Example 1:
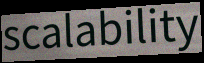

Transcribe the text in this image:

scalability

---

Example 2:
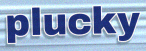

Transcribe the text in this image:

plucky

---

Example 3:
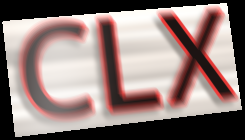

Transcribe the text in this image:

CLX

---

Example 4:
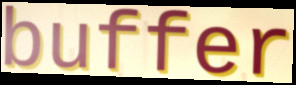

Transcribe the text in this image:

buffer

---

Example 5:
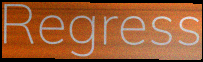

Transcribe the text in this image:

Regress